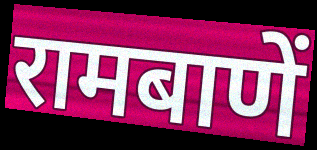
रामबाणें